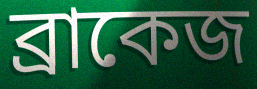
ব্রাকেজ